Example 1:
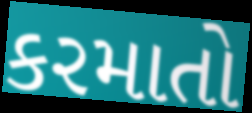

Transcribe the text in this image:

કરમાતો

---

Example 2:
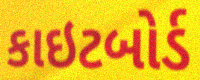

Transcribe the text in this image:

કાઇટબોર્ડ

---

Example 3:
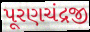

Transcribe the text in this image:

પૂરણચંદ્રજી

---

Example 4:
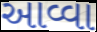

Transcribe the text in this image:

આવ્વા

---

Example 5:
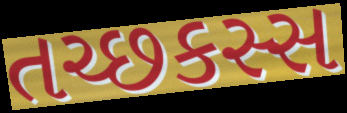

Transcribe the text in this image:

તચ્છકસ્સ